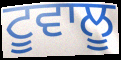
ਟੂਵਾਲੂ